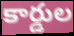
కార్డుల